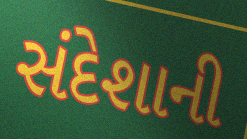
સંદેશાની